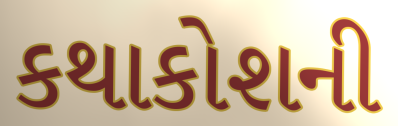
કથાકોશની